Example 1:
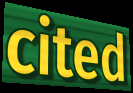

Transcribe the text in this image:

cited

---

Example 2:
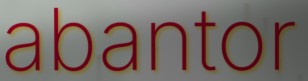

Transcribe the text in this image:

abantor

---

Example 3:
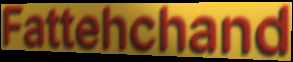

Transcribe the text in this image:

Fattehchand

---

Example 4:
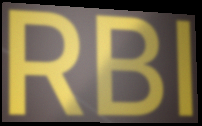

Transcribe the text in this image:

RBI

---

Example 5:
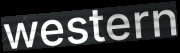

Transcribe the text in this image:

western